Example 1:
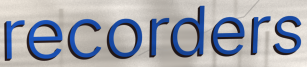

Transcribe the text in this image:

recorders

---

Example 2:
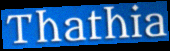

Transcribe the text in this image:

Thathia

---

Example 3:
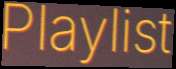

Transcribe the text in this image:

Playlist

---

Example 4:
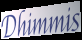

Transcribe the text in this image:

Dhimmis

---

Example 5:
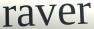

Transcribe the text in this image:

raver